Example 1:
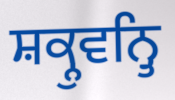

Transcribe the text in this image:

ਸ਼ਕ੍ਨੁਵਨ੍ਤਿ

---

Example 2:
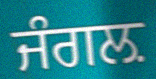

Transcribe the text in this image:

ਜੰਗਲ਼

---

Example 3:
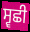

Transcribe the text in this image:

ਸ੍ਵਛੀ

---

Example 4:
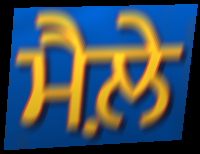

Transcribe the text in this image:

ਮੈਲ਼ੇ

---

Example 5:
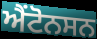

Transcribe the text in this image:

ਐਂਟੋਨਸਨ